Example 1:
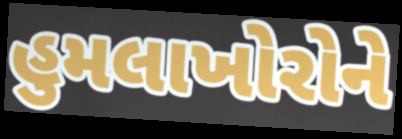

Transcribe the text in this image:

હુમલાખોરોને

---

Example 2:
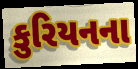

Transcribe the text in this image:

કુરિયનના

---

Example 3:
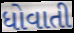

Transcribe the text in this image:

ધોવાતી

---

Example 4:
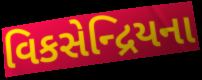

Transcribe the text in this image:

વિકસેન્દ્રિયના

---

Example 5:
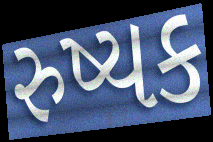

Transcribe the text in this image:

રુષ્યક